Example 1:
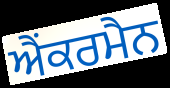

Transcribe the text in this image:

ਐਂਕਰਮੈਨ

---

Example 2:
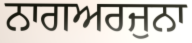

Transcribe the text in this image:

ਨਾਗਅਰਜੁਨਾ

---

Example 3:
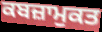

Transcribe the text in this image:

ਕਬਜ਼ਾਮੁਕਤ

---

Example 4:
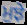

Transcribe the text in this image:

ਮੁਝੇ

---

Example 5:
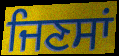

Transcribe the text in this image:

ਜਿਣਸਾਂ